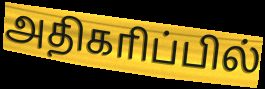
அதிகரிப்பில்